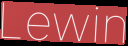
Lewin